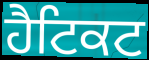
ਹੈਟਿਕਟ